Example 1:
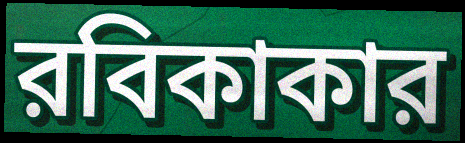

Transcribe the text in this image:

রবিকাকার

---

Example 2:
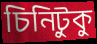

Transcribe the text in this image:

চিনিটুকু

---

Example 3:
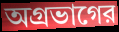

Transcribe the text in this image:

অগ্রভাগের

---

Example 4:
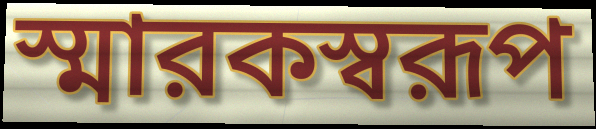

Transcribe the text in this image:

স্মারকস্বরূপ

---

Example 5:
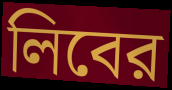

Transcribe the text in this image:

লিবের